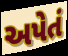
અપેતં